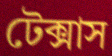
টেক্সাস